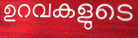
ഉറവകളുടെ